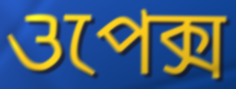
ওপেক্স